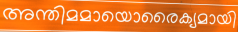
അന്തിമമായൊരൈക്യമായി